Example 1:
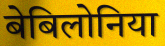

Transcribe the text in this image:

बेबिलोनिया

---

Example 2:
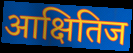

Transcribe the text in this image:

आक्षितिज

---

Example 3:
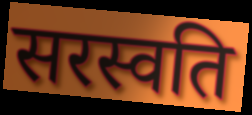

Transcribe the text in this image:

सरस्वति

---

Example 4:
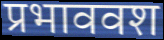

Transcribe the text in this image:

प्रभाववश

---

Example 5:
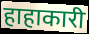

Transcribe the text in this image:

हाहाकारी